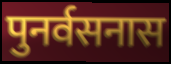
पुनर्वसनास